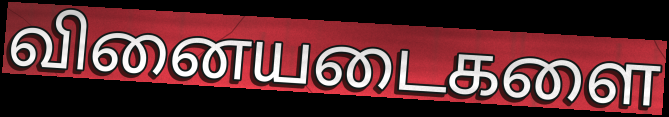
வினையடைகளை